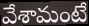
వేశామంటే